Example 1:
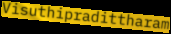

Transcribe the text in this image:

Visuthipradittharam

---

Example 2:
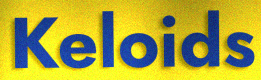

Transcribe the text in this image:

Keloids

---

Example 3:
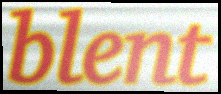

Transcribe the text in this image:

blent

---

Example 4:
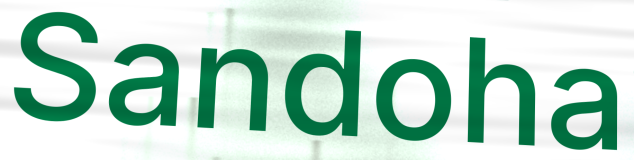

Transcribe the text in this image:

Sandoha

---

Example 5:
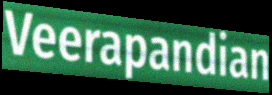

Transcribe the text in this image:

Veerapandian